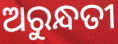
ଅରୁନ୍ଧତୀ